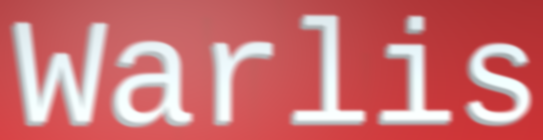
Warlis